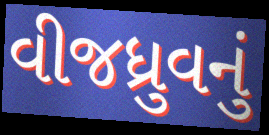
વીજધ્રુવનું